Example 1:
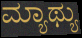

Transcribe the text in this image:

ಮ್ಯಾಥ್ಯು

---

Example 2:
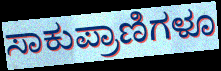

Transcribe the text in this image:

ಸಾಕುಪ್ರಾಣಿಗಳೂ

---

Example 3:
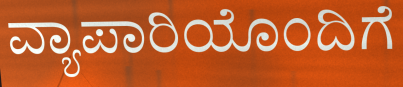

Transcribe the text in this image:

ವ್ಯಾಪಾರಿಯೊಂದಿಗೆ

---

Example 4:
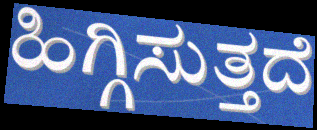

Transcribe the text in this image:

ಹಿಗ್ಗಿಸುತ್ತದೆ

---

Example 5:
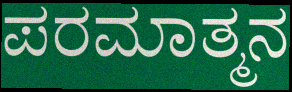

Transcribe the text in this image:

ಪರಮಾತ್ಮನ